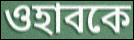
ওহাবকে